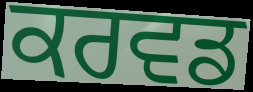
ਕਰਵਡ